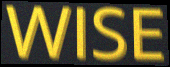
WISE